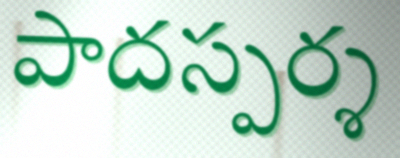
పాదస్పర్శ